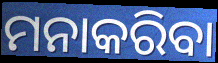
ମନାକରିବା